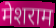
मेशराम